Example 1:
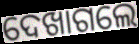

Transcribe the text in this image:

ଦେଖାଗଲେ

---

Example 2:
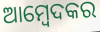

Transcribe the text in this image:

ଆମ୍ବେଦକର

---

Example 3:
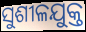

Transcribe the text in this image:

ସୁଶୀଳଯୁକ୍ତ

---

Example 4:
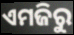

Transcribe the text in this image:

ଏମଜିରୁ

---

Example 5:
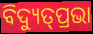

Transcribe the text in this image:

ବିଦ୍ୟୁତ୍‌ପ୍ରଭା